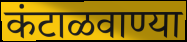
कंटाळवाण्या